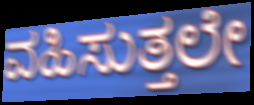
ವಹಿಸುತ್ತಲೇ